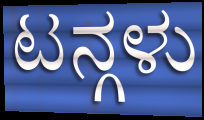
ಟನ್ಗಳು